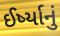
ઈર્ષ્યાનું